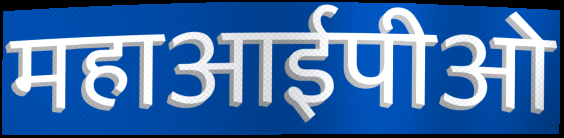
महाआईपीओ